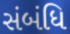
સંબંધિ